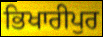
ਭਿਖਾਰੀਪੁਰ